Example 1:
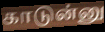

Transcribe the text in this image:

காடுன்னு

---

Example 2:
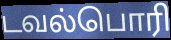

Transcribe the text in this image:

டவல்பொரி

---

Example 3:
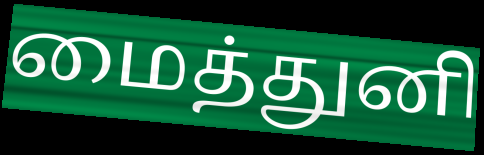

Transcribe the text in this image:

மைத்துனி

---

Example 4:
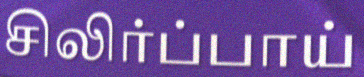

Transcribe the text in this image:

சிலிர்ப்பாய்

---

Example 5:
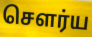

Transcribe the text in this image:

சௌர்ய